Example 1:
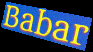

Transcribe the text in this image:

Babar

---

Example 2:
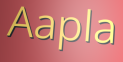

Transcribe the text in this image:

Aapla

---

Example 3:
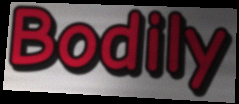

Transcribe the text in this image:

Bodily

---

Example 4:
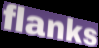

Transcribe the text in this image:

flanks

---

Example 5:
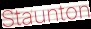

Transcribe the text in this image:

Staunton